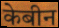
केबीन